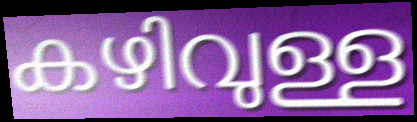
കഴിവുള്ള